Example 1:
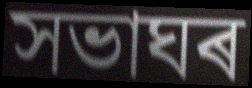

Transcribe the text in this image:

সভাঘৰ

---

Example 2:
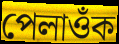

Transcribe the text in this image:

পেলাওঁক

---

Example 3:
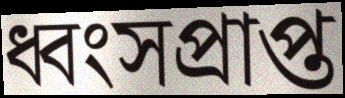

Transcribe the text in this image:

ধ্বংসপ্ৰাপ্ত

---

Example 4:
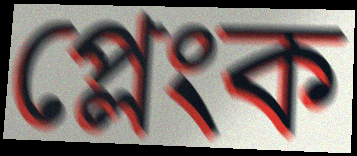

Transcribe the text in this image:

প্লেংক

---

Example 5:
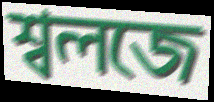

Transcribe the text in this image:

শ্বলজে